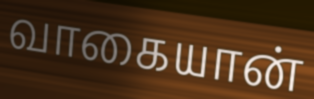
வாகையான்